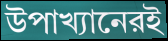
উপাখ্যানেরই